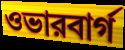
ওভারবার্গ